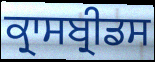
ਕ੍ਰਾਸਬ੍ਰੀਡਸ